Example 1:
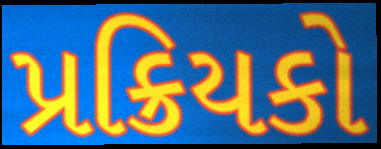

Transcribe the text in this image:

પ્રક્રિયકો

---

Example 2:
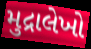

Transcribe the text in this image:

મુદ્રાલેખો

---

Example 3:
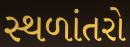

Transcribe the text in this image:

સ્થળાંતરો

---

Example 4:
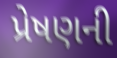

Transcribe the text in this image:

પ્રેષણની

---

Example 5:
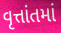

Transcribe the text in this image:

વૃત્તાંતમાં